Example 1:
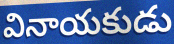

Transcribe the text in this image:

వినాయకుడు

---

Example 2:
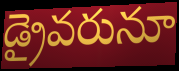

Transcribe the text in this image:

డ్రైవరునూ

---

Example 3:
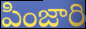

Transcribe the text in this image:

పింజారి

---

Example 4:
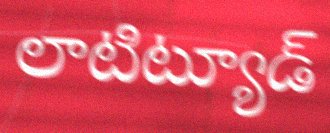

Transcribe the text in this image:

లాటిట్యూడ్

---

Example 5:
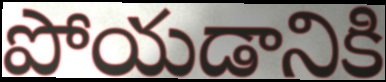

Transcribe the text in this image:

పోయడానికి